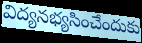
విద్యనభ్యసించేందుకు